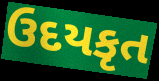
ઉદયકૃત